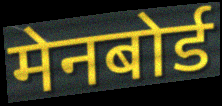
मेनबोर्ड